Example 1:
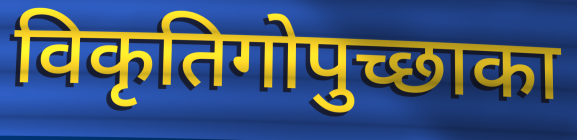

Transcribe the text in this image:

विकृतिगोपुच्छाका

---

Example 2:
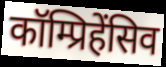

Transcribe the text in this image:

कॉम्प्रिहेंसिव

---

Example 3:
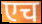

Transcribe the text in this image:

एच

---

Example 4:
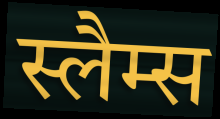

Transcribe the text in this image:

स्लैम्स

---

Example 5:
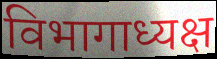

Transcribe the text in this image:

विभागाध्यक्ष